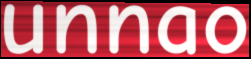
unnao